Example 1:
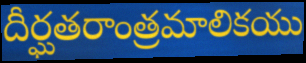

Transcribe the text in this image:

దీర్ఘతరాంత్రమాలికయు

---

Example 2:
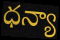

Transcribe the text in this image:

ధన్యా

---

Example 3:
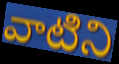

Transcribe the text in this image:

వాటిని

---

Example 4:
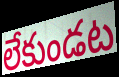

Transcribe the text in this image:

లేకుండట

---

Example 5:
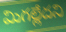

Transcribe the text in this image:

మిగల్లేదని